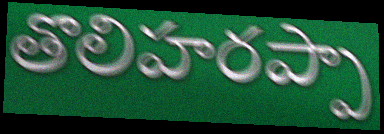
తొలిహరప్పా